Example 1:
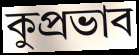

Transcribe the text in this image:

কুপ্রভাব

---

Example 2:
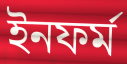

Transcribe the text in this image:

ইনফর্ম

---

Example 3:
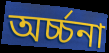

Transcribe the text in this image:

অর্চ্চনা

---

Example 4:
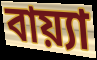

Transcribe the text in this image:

বায়্যা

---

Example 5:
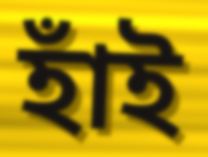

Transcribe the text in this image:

হাঁই